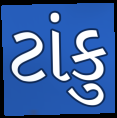
ટાંકુ